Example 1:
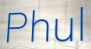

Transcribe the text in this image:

Phul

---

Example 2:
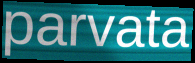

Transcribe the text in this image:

parvata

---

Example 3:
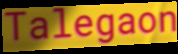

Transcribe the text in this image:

Talegaon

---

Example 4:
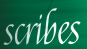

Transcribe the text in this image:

scribes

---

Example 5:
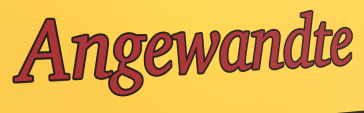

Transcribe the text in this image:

Angewandte